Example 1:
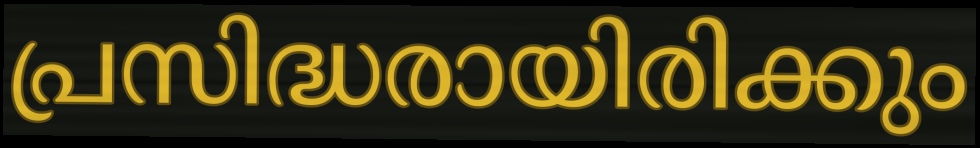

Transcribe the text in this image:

പ്രസിദ്ധരായിരിക്കും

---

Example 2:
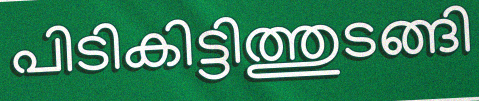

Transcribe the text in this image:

പിടികിട്ടിത്തുടങ്ങി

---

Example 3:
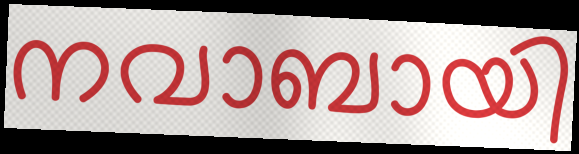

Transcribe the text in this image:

നവാബായി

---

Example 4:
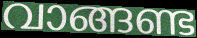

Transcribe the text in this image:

വാങ്ങണ്ട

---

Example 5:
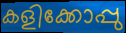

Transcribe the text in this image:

കളിക്കോപ്പു